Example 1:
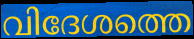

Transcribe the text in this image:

വിദേശത്തെ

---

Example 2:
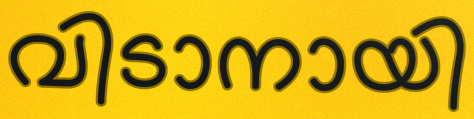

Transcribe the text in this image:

വിടാനായി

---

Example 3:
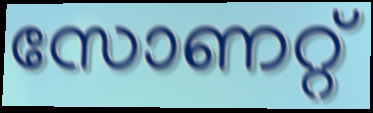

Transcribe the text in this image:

സോണറ്റ്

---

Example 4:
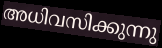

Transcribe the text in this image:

അധിവസിക്കുന്നു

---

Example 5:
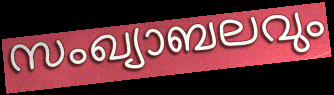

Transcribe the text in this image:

സംഖ്യാബലവും